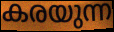
കരയുന്ന